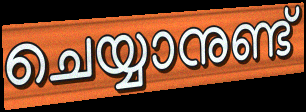
ചെയ്യാനുണ്ട്